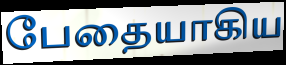
பேதையாகிய